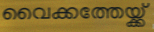
വൈക്കത്തേയ്ക്ക്